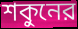
শকুনের